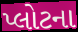
પ્લોટના